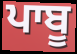
ਪਾਬੂ